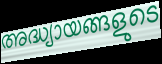
അദ്ധ്യായങ്ങളുടെ